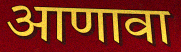
आणावा